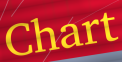
Chart